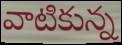
వాటికున్న